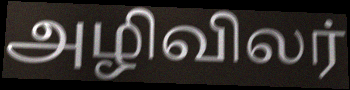
அழிவிலர்